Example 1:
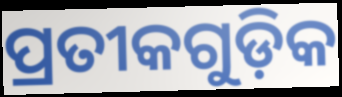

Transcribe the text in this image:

ପ୍ରତୀକଗୁଡ଼ିକ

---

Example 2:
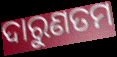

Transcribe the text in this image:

ଦାରୁଣତମ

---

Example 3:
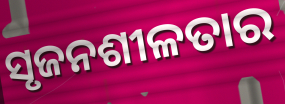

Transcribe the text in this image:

ସୃଜନଶୀଳତାର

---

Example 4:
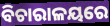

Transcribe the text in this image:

ବିଚାରାଳୟରେ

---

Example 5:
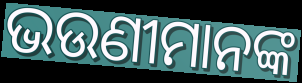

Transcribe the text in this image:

ଭଉଣୀମାନଙ୍କ